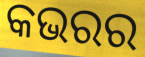
କଭରର